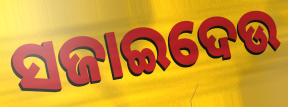
ସଜାଇଦେଉ